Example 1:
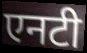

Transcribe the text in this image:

एनटी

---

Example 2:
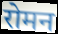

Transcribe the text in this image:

रोमन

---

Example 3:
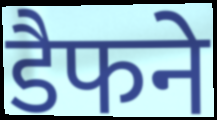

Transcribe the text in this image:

डैफने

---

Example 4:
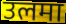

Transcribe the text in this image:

उलमा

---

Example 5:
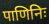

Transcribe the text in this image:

पाणिनिः